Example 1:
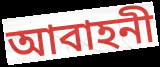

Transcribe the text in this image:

আবাহনী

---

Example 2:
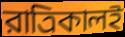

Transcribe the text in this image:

রাত্রিকালই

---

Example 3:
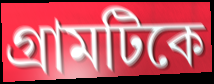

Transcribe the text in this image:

গ্রামটিকে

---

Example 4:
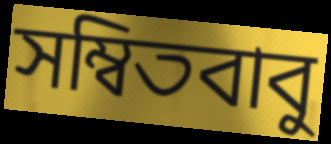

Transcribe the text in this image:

সম্বিতবাবু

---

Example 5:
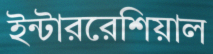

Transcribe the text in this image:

ইন্টাররেশিয়াল